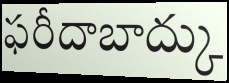
ఫరీదాబాద్కు